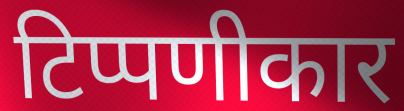
टिप्पणीकार